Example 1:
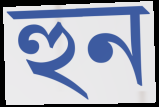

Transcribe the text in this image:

হুন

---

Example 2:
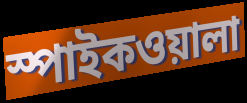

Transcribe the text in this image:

স্পাইকওয়ালা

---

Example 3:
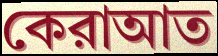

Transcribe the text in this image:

কেরাআত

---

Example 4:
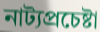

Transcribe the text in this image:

নাট্যপ্রচেষ্টা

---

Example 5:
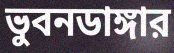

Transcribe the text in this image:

ভুবনডাঙ্গার